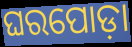
ଘରପୋଡ଼ା